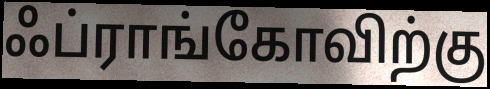
ஃப்ராங்கோவிற்கு